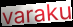
varaku